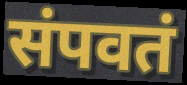
संपवतं